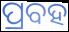
ପ୍ରବହ